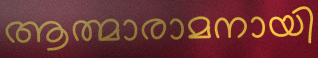
ആത്മാരാമനായി